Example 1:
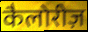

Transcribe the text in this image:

कैलोरीज़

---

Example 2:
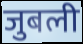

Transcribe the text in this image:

जुबली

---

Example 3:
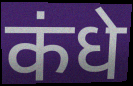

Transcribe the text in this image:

कंधे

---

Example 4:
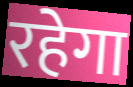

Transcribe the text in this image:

रहेगा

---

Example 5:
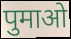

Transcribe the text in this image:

पुमाओ